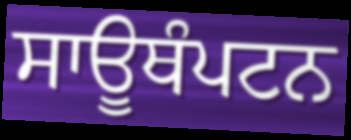
ਸਾਊਥੰਪਟਨ